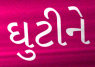
ઘુટીને